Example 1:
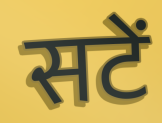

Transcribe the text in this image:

सटें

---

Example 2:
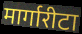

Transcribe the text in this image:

मार्गारीटा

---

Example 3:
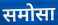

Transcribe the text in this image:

समोसा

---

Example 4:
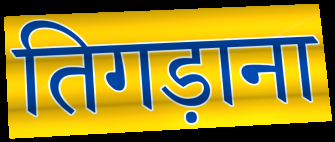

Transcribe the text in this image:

तिगड़ाना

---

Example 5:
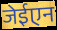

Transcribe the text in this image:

जेईएन